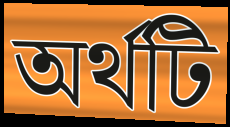
অর্থটি